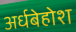
अर्धबेहोश